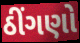
ઠીંગણો